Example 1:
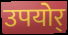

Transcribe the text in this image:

उपयोर्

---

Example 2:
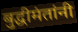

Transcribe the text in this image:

बुद्धीमंतांनी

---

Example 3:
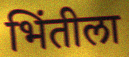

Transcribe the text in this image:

भिंतीला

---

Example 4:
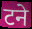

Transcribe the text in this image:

टने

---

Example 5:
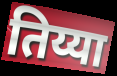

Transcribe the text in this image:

तिय्या